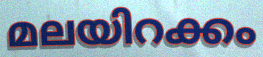
മലയിറക്കം